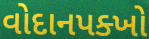
વોદાનપક્ખો